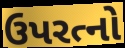
ઉપરત્નો